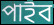
পাইব